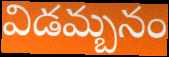
విడమ్బనం